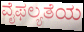
ವೈಫಲ್ಯತೆಯ